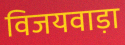
विजयवाड़ा